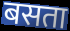
बसता